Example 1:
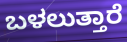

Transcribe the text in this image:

ಬಳಲುತ್ತಾರೆ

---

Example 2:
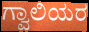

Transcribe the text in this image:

ಗ್ವಾಲಿಯರ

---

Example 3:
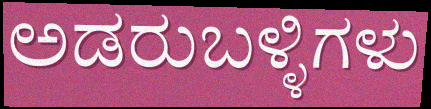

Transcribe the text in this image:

ಅಡರುಬಳ್ಳಿಗಳು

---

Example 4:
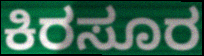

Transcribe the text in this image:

ಕಿರಸೂರ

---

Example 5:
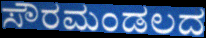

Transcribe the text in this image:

ಸೌರಮಂಡಲದ